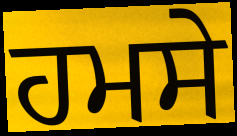
ਹਮਸੇ